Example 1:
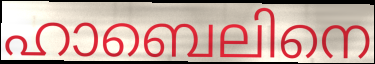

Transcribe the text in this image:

ഹാബെലിനെ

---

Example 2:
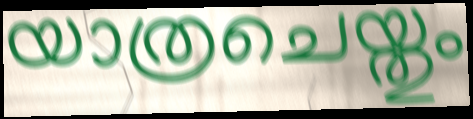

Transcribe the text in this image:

യാത്രചെയ്തും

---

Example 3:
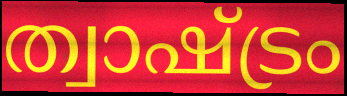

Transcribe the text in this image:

ത്വാഷ്ട്രം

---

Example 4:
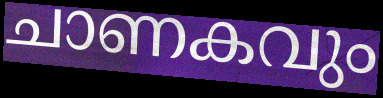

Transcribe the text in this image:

ചാണകവും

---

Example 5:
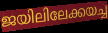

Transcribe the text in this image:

ജയിലിലേക്കയച്ച